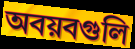
অবয়বগুলি